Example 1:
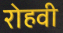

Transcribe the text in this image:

रोहवी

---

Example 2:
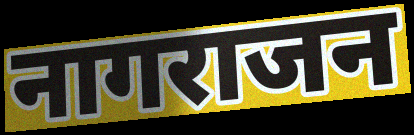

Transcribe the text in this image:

नागराजन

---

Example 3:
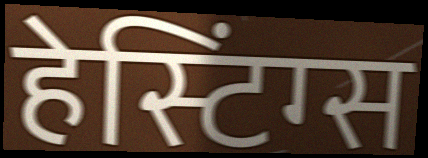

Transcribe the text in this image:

हेस्टिंग्स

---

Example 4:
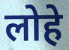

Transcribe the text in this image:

लोहे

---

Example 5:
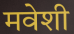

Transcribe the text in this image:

मवेशी